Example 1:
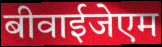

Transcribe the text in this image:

बीवाईजेएम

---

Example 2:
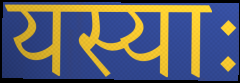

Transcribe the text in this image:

यस्याः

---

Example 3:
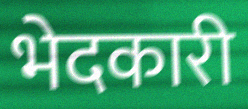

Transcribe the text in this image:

भेदकारी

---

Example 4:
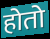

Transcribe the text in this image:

होतो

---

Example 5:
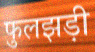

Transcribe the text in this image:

फुलझड़ी